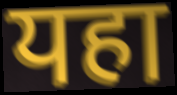
यहा